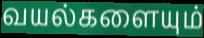
வயல்களையும்